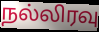
நல்லிரவு